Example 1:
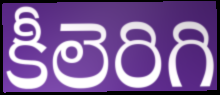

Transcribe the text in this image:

కీలెరిగి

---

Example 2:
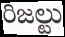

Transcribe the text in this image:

రిజల్టు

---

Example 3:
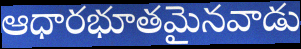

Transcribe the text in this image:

ఆధారభూతమైనవాడు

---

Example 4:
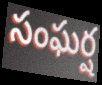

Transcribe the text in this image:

సంఘర్ష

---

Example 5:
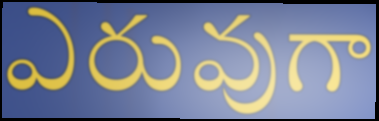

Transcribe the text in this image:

ఎరువుగా